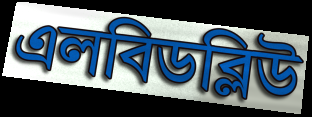
এলবিডব্লিউ